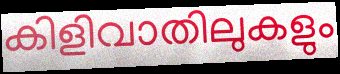
കിളിവാതിലുകളും